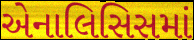
એનાલિસિસમાં